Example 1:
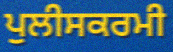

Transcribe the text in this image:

ਪੁਲੀਸਕਰਮੀ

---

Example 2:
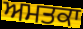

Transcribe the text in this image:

ਅਮਤਕਾ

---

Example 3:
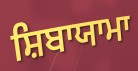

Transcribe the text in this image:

ਸ਼ਿਬਾਯਾਮਾ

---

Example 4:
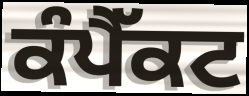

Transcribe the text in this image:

ਕੰਪੈੱਕਟ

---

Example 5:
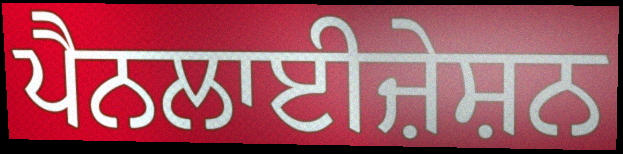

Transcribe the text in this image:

ਪੈਨਲਾਈਜ਼ੇਸ਼ਨ